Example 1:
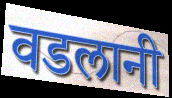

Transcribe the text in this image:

वडलानी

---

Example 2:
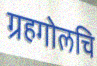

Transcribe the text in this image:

ग्रहगोलचि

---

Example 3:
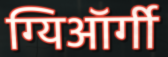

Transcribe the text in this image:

ग्यिऑर्गी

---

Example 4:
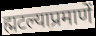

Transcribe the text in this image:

ह्मटल्याप्रमाणें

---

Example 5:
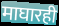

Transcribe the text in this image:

माघारही